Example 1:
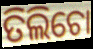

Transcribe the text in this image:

ତିଲିଚୋ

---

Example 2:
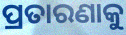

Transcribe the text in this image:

ପ୍ରତାରଣାକୁ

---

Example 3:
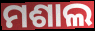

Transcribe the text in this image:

ମଶାଲ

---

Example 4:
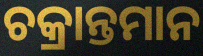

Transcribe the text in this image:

ଚକ୍ରାନ୍ତମାନ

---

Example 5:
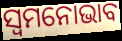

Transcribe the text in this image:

ସ୍ୱମନୋଭାବ